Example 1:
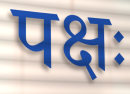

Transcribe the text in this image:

पक्षः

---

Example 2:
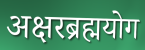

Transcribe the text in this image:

अक्षरब्रह्मयोग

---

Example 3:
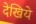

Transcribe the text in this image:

देखिये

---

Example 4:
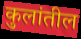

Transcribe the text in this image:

कुलांतील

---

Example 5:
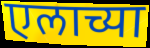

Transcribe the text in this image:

एलाच्या